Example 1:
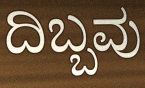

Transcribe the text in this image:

ದಿಬ್ಬವು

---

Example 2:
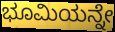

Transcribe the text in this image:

ಭೂಮಿಯನ್ನೇ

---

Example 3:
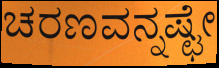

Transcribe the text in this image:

ಚರಣವನ್ನಷ್ಟೇ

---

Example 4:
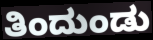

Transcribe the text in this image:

ತಿಂದುಂಡು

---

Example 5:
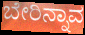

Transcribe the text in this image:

ಬೇರಿನ್ನಾವ